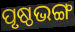
ପୃଷ୍ଠଭଙ୍ଗ